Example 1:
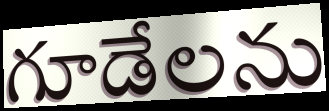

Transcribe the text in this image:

గూడేలను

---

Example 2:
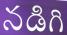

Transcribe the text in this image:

నడిగి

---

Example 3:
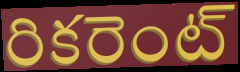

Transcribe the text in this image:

రికరెంట్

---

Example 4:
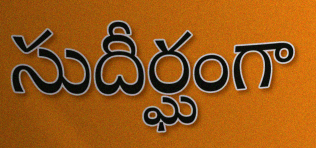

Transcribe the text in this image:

సుదీర్ఘంగా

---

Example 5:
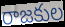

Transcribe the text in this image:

రాజకుల